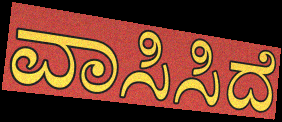
ವಾಸಿಸಿದೆ